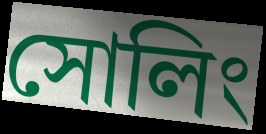
সোলিং